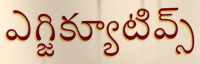
ఎగ్జిక్యూటివ్స్